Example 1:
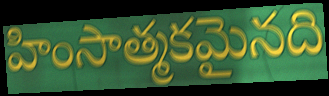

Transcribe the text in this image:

హింసాత్మకమైనది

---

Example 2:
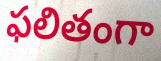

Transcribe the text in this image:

ఫలితంగా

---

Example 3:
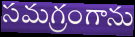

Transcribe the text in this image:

సమగ్రంగాను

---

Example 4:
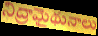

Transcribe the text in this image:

నిద్రామైథునాలు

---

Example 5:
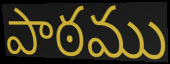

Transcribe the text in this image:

పాఠము